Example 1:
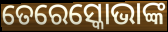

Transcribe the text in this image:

ତେରେସ୍କୋଭାଙ୍କ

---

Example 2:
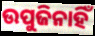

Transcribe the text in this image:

ଉପୁଜିନାହିଁ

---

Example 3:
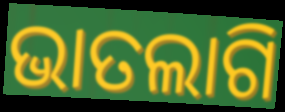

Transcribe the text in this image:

ଭାତଲାଗି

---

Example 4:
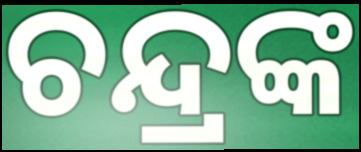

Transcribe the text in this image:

ଚନ୍ଦ୍ରଙ୍କ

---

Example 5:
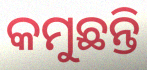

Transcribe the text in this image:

କମୁଛନ୍ତି